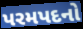
પરમપદનો